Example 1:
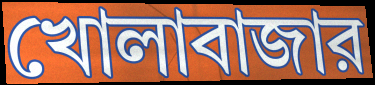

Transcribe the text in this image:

খোলাবাজার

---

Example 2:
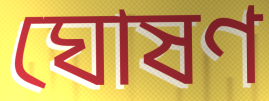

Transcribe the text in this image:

ঘোষণ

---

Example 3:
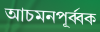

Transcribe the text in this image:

আচমনপূর্ব্বক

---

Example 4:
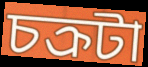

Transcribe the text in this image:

চক্রটা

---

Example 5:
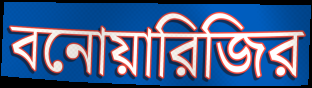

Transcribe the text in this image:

বনোয়ারিজির